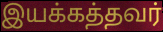
இயக்கத்தவர்